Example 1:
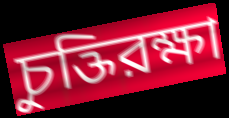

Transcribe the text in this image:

চুক্তিরক্ষা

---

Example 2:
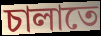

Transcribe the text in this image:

চালাতে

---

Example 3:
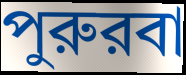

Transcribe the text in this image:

পুরুরবা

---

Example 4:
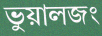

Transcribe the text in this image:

ভুয়ালজং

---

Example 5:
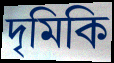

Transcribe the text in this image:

দৃমিকি